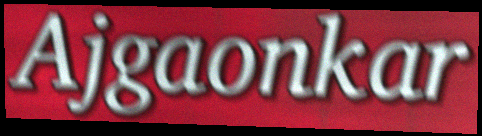
Ajgaonkar